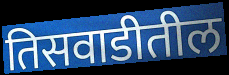
तिसवाडीतील